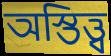
অস্তিত্ত্ব